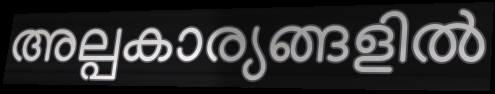
അല്പകാര്യങ്ങളിൽ